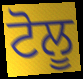
ਟੋਲੂ